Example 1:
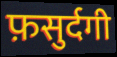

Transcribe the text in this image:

फ़सुर्दगी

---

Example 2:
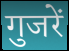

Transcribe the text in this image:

गुजरें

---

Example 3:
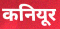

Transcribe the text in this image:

कनियूर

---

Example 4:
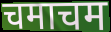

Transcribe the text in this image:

चमाचम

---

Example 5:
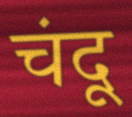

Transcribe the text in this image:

चंदू